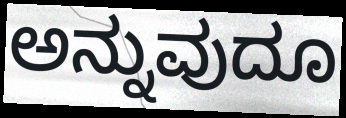
ಅನ್ನುವುದೂ